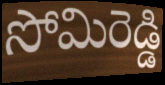
సోమిరెడ్డి